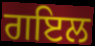
ਗਇਲ